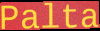
Palta